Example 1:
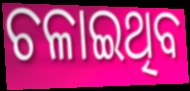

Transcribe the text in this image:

ଚଳାଇଥିବ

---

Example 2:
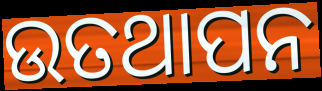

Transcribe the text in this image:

ଉତଥାପନ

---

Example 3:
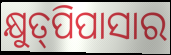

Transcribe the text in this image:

କ୍ଷୁତ୍‍ପିପାସାର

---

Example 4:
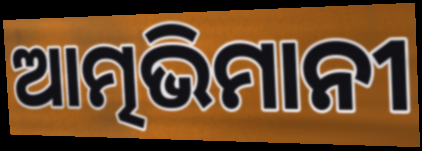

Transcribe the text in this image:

ଆତ୍ମଭିମାନୀ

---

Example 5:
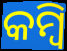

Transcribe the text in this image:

କମ୍ବି